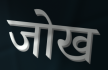
जोख